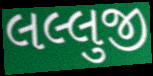
લલ્લુજી